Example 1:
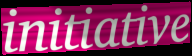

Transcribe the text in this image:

initiative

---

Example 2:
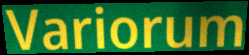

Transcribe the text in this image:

Variorum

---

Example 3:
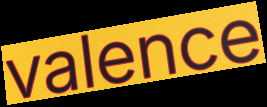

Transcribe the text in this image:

valence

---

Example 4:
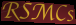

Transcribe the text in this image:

RSMCs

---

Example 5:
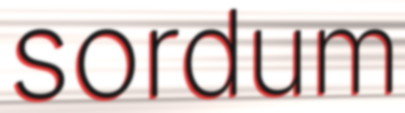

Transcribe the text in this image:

sordum